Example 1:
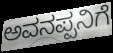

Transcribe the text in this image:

ಅವನಪ್ಪನಿಗೆ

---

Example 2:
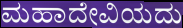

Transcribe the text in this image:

ಮಹಾದೇವಿಯದು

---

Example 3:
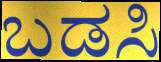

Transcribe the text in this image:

ಬಡಸಿ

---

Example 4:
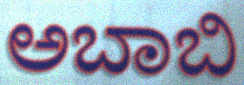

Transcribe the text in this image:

ಅಬಾಬಿ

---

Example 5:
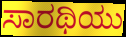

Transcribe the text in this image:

ಸಾರಥಿಯು